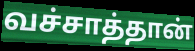
வச்சாத்தான்